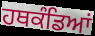
ਹਥਕੰਡਿਆਂ